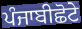
ਪੰਜਾਬੀਛੋਟੇ